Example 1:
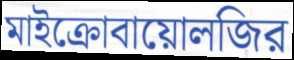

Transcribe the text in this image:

মাইক্রোবায়োলজির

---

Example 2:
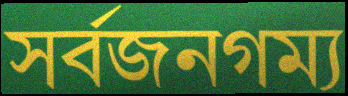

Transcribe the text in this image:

সর্বজনগম্য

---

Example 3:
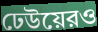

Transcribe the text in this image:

ঢেউয়েরও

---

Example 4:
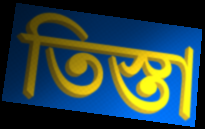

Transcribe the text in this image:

তিস্তা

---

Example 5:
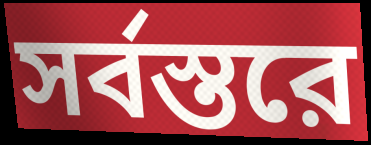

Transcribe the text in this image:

সর্বস্তরে